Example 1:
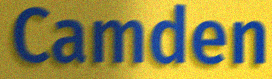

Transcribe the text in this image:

Camden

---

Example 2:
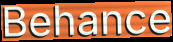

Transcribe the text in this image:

Behance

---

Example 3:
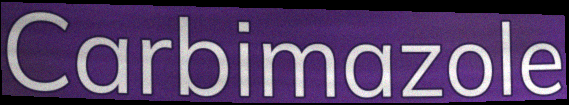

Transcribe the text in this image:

Carbimazole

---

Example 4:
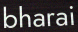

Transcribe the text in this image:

bharai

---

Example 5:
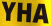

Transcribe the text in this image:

YHA